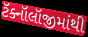
ટૅક્નૉલૉજીમાંથી